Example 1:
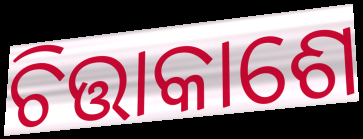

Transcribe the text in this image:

ଚିତ୍ତାକାଶେ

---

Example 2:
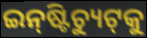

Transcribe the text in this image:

ଇନ୍‌ଷ୍ଟିଚ୍ୟୁଟ୍‌କୁ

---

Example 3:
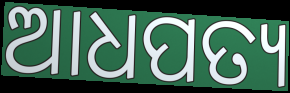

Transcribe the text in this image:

ଆଧପତ୍ୟ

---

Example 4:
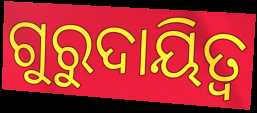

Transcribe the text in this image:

ଗୁରୁଦାୟିତ୍ୱ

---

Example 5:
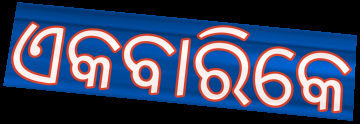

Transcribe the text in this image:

ଏକବାରିକେ